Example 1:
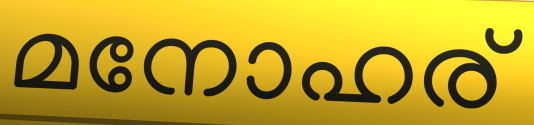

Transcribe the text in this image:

മനോഹര്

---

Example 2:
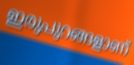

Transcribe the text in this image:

ഇരുപുറങ്ങളാണ്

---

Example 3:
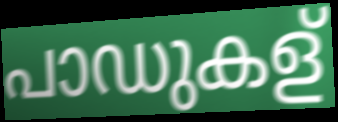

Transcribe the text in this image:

പാഡുകള്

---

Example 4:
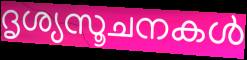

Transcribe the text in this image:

ദൃശ്യസൂചനകൾ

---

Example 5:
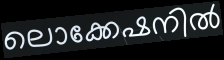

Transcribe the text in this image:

ലൊക്കേഷനിൽ